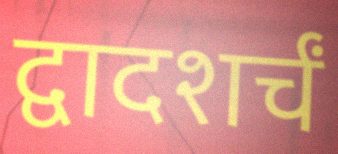
द्वादशर्चं